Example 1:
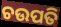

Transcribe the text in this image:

ଚଉପତି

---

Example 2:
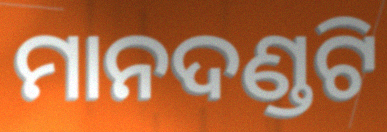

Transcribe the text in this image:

ମାନଦଣ୍ଡଟି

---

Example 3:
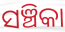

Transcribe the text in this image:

ସଞ୍ଚିକା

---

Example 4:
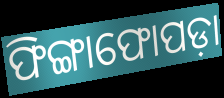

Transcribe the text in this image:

ଫିଙ୍ଗାଫୋପଡ଼ା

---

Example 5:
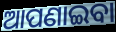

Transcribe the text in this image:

ଆପଣାଇବା